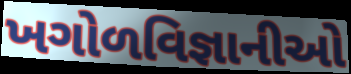
ખગોળવિજ્ઞાનીઓ